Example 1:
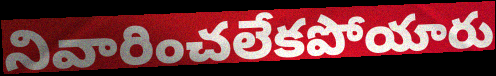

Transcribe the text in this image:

నివారించలేకపోయారు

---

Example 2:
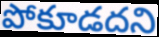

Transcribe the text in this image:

పోకూడదని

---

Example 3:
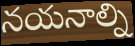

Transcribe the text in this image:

నయనాల్ని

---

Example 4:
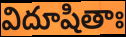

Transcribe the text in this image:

విదూషితాః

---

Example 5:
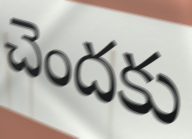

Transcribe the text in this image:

చెందకు